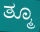
ತ್ಮೂ